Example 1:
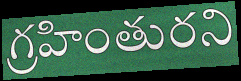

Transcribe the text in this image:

గ్రహింతురని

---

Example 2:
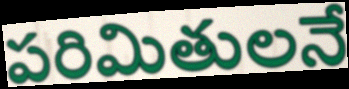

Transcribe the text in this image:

పరిమితులనే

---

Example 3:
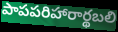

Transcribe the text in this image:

పాపపరిహారార్థబలి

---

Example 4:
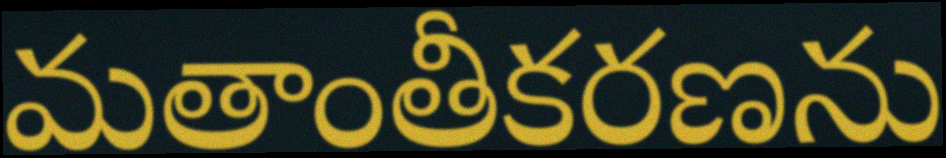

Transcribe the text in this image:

మతాంతీకరణను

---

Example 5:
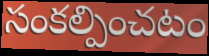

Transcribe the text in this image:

సంకల్పించటం